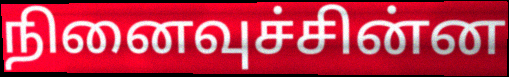
நினைவுச்சின்ன